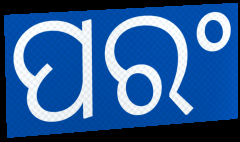
ପରଂ